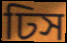
ঢিস